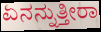
ಏನನ್ನುತ್ತೀರಾ